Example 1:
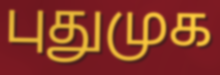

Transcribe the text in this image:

புதுமுக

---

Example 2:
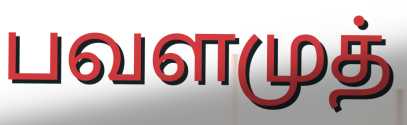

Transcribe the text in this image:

பவளமுத்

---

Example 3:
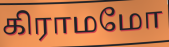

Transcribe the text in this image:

கிராமமோ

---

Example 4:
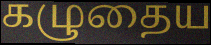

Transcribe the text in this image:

கழுதைய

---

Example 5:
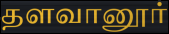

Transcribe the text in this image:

தளவானூர்